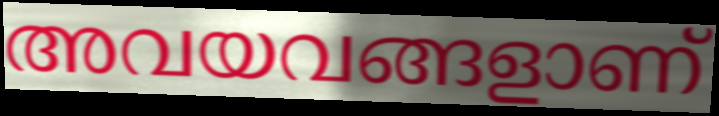
അവയവങ്ങളാണ്